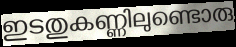
ഇടതുകണ്ണിലുണ്ടൊരു